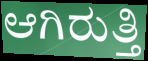
ಆಗಿರುತ್ತಿ